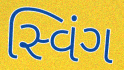
સ્વિંગ